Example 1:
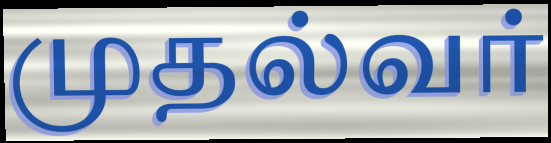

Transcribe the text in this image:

முதல்வர்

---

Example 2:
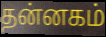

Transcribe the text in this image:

தன்னகம்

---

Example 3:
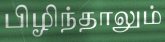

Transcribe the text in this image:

பிழிந்தாலும்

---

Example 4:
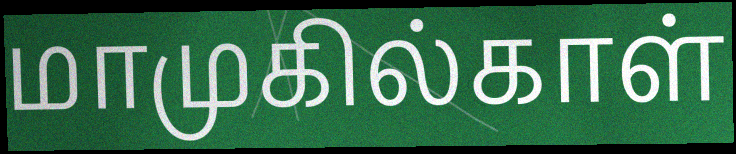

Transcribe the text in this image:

மாமுகில்காள்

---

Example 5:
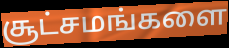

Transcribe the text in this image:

சூட்சமங்களை